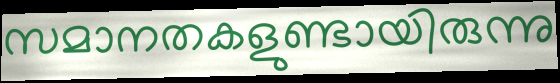
സമാനതകളുണ്ടായിരുന്നു